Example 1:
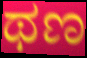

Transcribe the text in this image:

ಥಣ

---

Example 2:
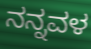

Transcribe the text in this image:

ನನ್ನವಳ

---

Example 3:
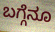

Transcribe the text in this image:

ಬಗ್ಗೆನೂ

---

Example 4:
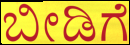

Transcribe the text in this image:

ಬೀಡಿಗೆ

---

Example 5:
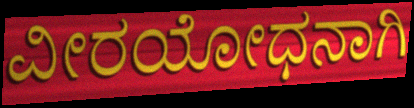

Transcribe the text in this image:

ವೀರಯೋಧನಾಗಿ